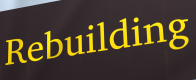
Rebuilding